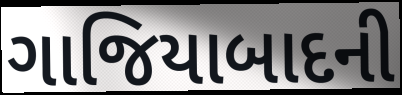
ગાજિયાબાદની